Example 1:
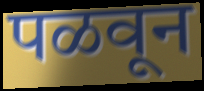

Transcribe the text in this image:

पळवून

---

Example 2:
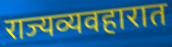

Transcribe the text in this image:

राज्यव्यवहारात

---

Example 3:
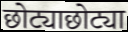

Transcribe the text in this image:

छोट्याछोट्या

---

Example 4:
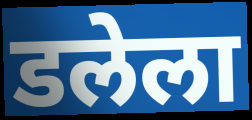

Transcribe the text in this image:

डलेला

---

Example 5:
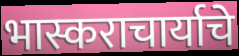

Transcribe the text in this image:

भास्कराचार्याचे